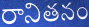
రానితనం